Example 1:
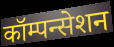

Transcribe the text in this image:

कॉम्पन्सेशन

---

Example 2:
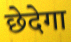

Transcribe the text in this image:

छेदेगा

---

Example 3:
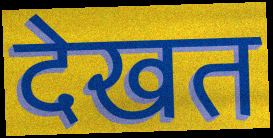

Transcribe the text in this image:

देखत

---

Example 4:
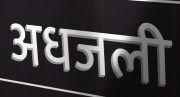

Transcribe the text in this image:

अधजली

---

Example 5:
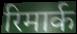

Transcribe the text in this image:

रिमार्क